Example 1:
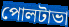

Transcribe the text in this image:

পোলটাভা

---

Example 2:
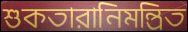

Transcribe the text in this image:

শুকতারানিমন্ত্রিত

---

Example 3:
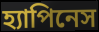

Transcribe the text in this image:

হ্যাপিনেস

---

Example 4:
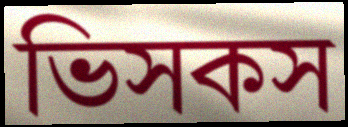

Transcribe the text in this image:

ভিসকস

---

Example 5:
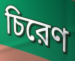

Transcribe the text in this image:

চিরেণ